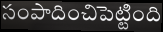
సంపాదించిపెట్టింది